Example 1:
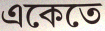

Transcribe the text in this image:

একেতে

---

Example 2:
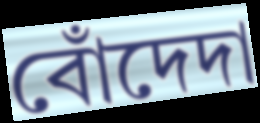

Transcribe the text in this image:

বোঁদেদা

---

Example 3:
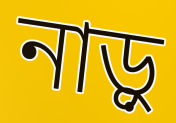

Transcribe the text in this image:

নাড়ু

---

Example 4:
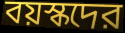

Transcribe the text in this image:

বয়স্কদের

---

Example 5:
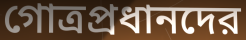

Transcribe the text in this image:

গোত্রপ্রধানদের